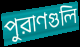
পুরাণগুলি